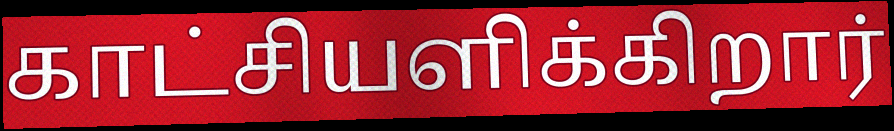
காட்சியளிக்கிறார்